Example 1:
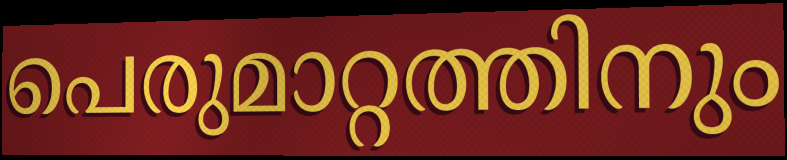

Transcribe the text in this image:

പെരുമാറ്റത്തിനും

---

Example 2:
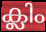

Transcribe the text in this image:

ക്ലിം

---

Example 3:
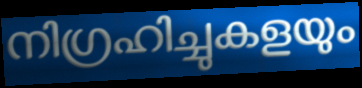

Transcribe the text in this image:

നിഗ്രഹിച്ചുകളയും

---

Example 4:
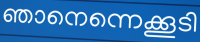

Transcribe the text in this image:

ഞാനെന്നെക്കൂടി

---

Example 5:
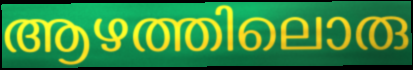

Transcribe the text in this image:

ആഴത്തിലൊരു